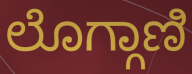
ಲೊಗ್ಗಾಣಿ